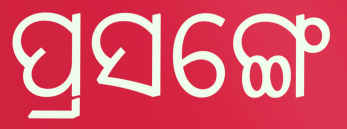
ପ୍ରସଙ୍ଗେ